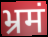
भ्रमं